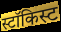
स्टॉकिस्ट